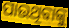
ପାଉଥିବାକୁ